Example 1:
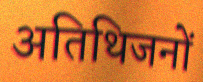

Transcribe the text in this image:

अतिथिजनों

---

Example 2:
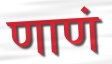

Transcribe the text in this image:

णाणं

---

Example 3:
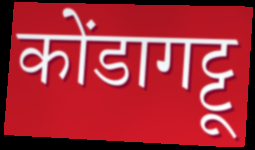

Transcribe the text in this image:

कोंडागट्टू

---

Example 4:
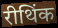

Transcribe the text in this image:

रीथिंक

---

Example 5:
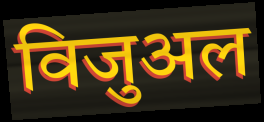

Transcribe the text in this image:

विजुअल